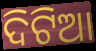
ଦିଟିଆ